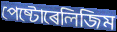
পেষ্টোৰেলিজিম